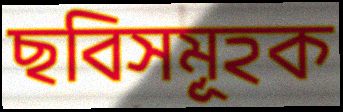
ছবিসমূহক